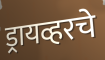
ड्रायव्हरचे